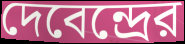
দেবেন্দ্রের